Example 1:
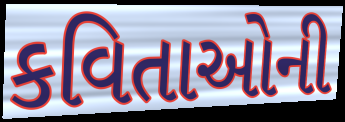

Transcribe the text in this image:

કવિતાઓની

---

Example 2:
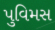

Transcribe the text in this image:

પુવિમસ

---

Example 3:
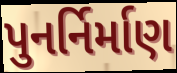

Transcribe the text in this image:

પુનર્નિર્માણ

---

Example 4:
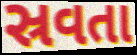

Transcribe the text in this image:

સ્રવતા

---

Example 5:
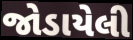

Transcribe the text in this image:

જોડાયેલી